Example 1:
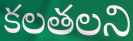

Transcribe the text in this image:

కలతలని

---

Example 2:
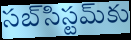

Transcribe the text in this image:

సబ్‌సిస్టమ్‌కు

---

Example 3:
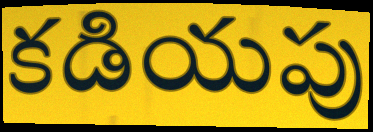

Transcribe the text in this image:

కడియపు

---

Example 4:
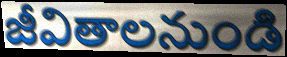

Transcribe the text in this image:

జీవితాలనుండి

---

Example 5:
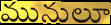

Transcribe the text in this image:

మునులూ